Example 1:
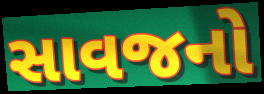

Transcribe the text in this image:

સાવજનો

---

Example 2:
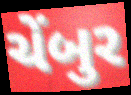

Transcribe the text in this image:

ચેંબુર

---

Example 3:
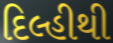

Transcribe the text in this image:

દિલ્હીથી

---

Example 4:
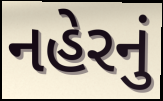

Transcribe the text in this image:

નહેરનું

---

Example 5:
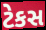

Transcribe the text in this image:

ટેકસ